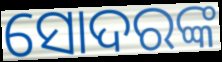
ସୋଦରଙ୍କ